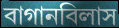
বাগানবিলাস